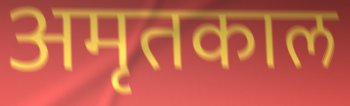
अमृतकाल